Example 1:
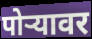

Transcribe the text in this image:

पोर्‍यावर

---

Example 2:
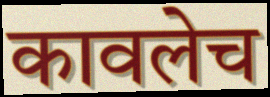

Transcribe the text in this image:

कावलेच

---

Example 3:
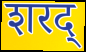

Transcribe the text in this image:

शरद्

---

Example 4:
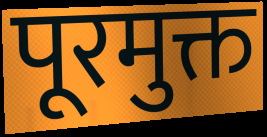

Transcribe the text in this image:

पूरमुक्त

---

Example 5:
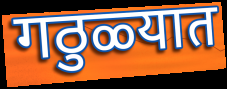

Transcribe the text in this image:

गठुळ्यात